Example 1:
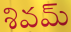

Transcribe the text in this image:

శివమ్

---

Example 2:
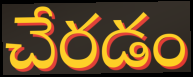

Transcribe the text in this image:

చేరడం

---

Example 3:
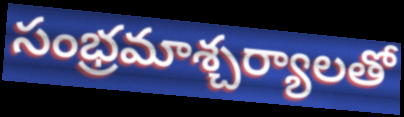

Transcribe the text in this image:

సంభ్రమాశ్చర్యాలతో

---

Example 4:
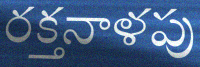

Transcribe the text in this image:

రక్తనాళపు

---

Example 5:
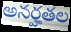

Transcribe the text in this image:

అనర్హతల